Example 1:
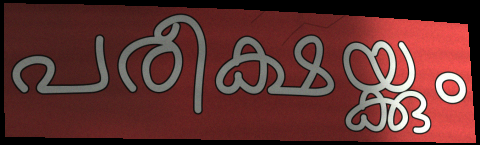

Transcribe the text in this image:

പരീക്ഷയ്ക്കും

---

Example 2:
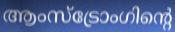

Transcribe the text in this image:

ആംസ്ട്രോംഗിന്റെ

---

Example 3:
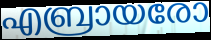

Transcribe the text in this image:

എബ്രായരോ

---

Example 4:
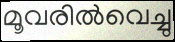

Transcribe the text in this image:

മൂവരിൽവെച്ചു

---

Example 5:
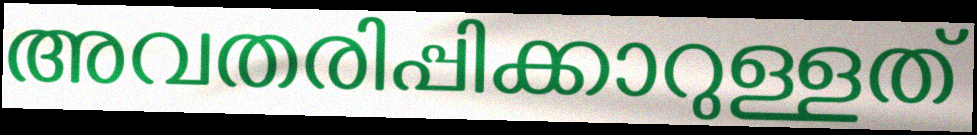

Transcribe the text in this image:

അവതരിപ്പിക്കാറുള്ളത്